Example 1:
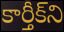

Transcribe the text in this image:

కార్తీక్‌ని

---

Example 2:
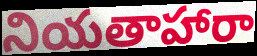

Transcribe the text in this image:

నియతాహారా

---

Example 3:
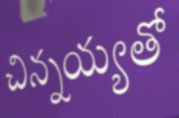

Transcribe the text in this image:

చిన్నయ్యతో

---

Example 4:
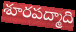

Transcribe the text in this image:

శూరపద్మాది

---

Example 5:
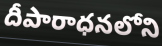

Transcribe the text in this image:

దీపారాధనలోని